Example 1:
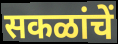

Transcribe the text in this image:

सकळांचें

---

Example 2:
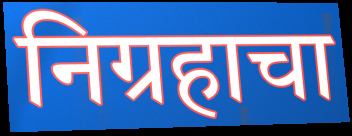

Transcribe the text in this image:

निग्रहाचा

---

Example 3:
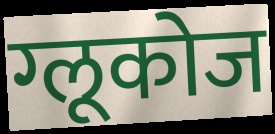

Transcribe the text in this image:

ग्लूकोज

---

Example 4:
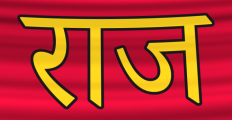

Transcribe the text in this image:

राज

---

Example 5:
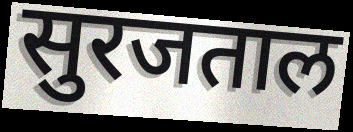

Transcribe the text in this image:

सुरजताल